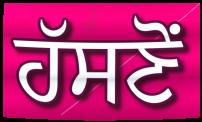
ਹੱਸਣੋਂ